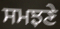
ਸਮਝਣੇ